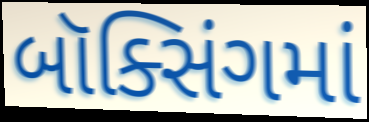
બૉક્સિંગમાં